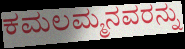
ಕಮಲಮ್ಮನವರನ್ನು